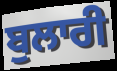
ਬੁਲਾਰੀ